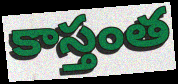
కాస్తంత